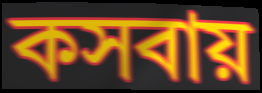
কসবায়